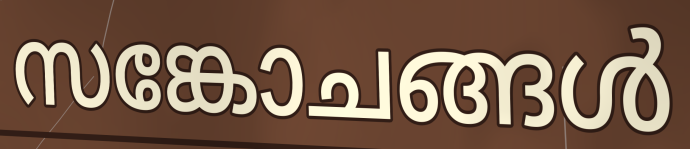
സങ്കോചങ്ങൾ